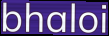
bhaloi